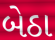
બેઠા